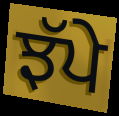
ਝੱਪੇ